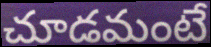
చూడమంటే